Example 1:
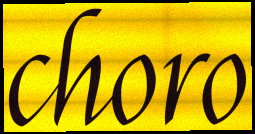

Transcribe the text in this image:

choro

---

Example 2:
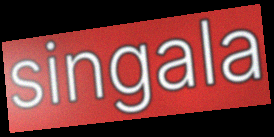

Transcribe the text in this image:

singala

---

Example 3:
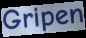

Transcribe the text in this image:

Gripen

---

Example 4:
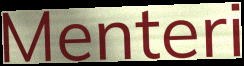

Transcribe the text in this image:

Menteri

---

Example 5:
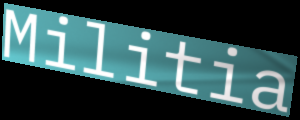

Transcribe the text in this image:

Militia